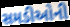
સમડીઓની